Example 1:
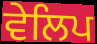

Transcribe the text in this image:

ਵੇਲਿਪ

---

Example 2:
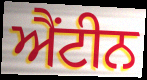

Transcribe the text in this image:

ਐਂਟੀਨ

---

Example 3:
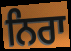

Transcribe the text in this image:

ਨਿਰਾ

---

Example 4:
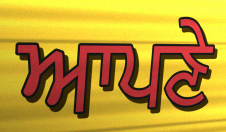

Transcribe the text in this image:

ਆਪਣੇ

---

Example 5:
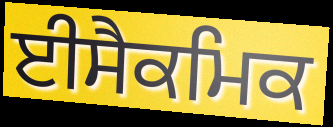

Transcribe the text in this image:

ਈਸੈਕਮਿਕ